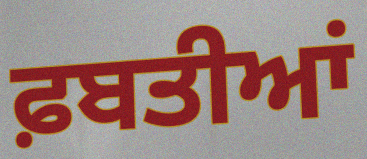
ਫ਼ਬਤੀਆਂ